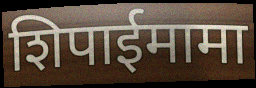
शिपाईमामा